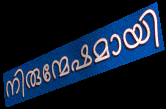
നിരുന്മേഷമായി